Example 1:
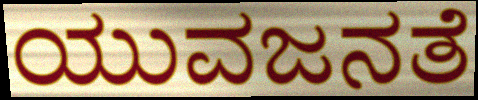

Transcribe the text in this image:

ಯುವಜನತೆ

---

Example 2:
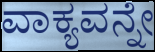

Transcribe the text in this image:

ವಾಕ್ಯವನ್ನೇ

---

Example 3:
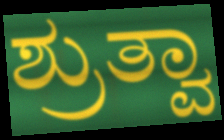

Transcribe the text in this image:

ಶ್ರುತ್ವಾ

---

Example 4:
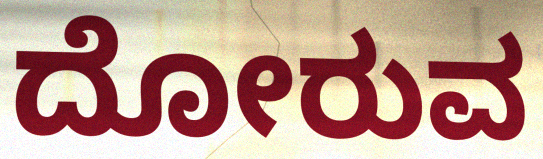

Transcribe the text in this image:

ದೋರುವ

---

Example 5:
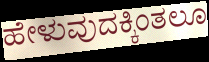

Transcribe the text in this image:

ಹೇಳುವುದಕ್ಕಿಂತಲೂ